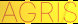
AGRIS